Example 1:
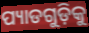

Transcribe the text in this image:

ପ୍ୟାଡଗୁଡ଼ିକୁ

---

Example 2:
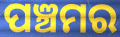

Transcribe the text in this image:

ପଞ୍ଚମର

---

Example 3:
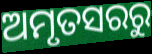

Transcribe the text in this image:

ଅମୃତସରରୁ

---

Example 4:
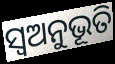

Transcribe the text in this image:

ସ୍ୱଅନୁଭୂତି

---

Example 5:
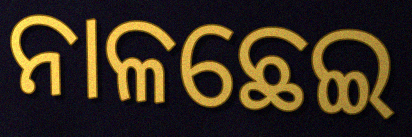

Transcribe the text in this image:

ନାଳଛେଇ